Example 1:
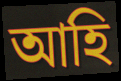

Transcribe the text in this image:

আহি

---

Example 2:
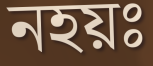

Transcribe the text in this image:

নহয়ঃ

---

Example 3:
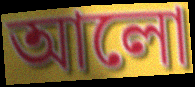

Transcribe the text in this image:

আলো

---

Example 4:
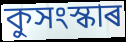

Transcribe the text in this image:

কুসংস্কাৰ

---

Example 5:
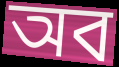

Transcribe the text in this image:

অব